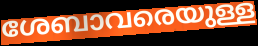
ശേബാവരെയുള്ള